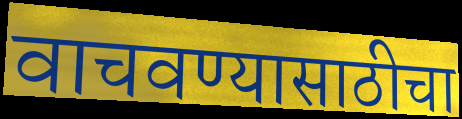
वाचवण्यासाठीचा